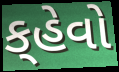
ક્‌હેવો